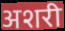
अशरी